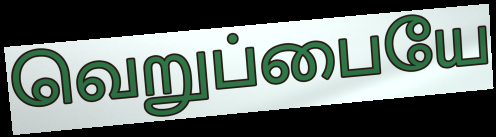
வெறுப்பையே